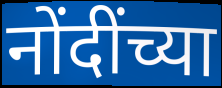
नोंदींच्या